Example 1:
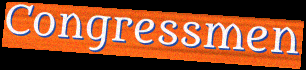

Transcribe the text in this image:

Congressmen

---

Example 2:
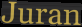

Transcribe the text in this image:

Juran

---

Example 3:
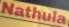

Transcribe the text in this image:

Nathula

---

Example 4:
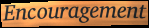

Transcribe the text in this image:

Encouragement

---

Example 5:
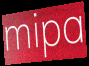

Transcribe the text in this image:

mipa